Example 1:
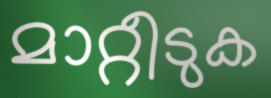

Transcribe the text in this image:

മാറ്റീടുക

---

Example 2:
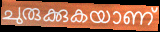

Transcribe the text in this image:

ചുരുക്കുകയാണ്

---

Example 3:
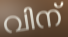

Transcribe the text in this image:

വിന്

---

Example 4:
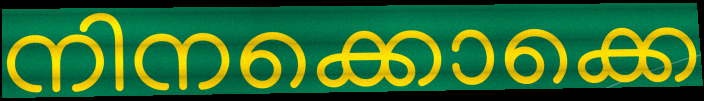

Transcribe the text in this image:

നിനക്കൊക്കെ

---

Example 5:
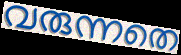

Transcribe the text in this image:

വരുന്നതെ